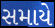
સમાયે